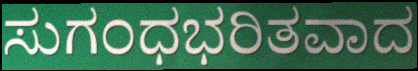
ಸುಗಂಧಭರಿತವಾದ